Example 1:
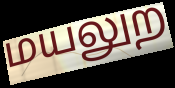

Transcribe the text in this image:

மயலுற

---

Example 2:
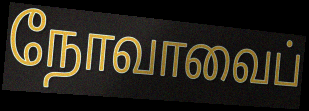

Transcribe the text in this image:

நோவாவைப்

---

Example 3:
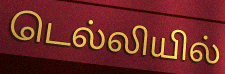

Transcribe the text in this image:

டெல்லியில்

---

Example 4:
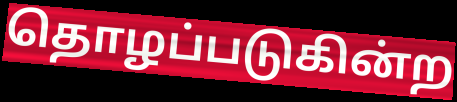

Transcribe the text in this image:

தொழப்படுகின்ற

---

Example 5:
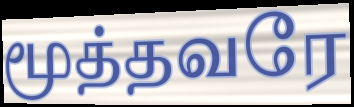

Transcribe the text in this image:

மூத்தவரே